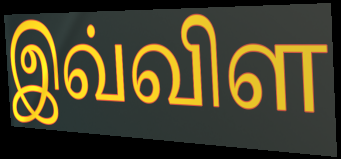
இவ்விள